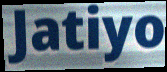
Jatiyo